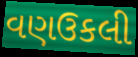
વણઉકલી